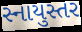
સ્નાયુસ્તર